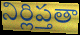
నిర్లిప్తతా